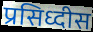
प्रसिध्दीस